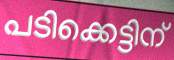
പടിക്കെട്ടിന്